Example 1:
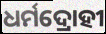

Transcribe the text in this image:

ଧର୍ମଦ୍ରୋହୀ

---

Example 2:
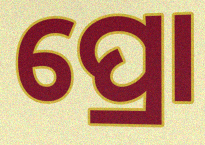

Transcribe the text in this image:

ପ୍ରୋ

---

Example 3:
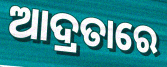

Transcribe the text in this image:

ଆଦ୍ରତାରେ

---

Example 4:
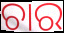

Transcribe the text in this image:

ଚାର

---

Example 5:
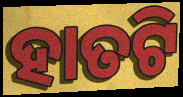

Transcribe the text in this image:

ହାତଟି